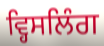
ਵ੍ਹਿਸਲਿੰਗ